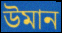
উমান